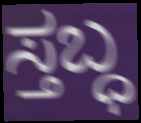
ಸ್ತಬ್ಧ